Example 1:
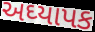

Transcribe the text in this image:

અઘ્યાપક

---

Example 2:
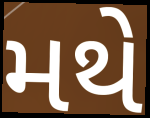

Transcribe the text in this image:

મથે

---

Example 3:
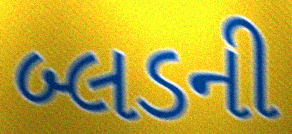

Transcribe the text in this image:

બ્લડની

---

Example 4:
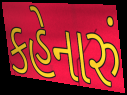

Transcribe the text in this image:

કહેનારું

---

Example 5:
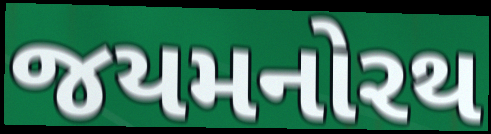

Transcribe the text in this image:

જયમનોરથ